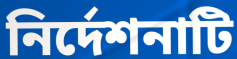
নির্দেশনাটি